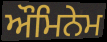
ਔਮਿਨੇਮ